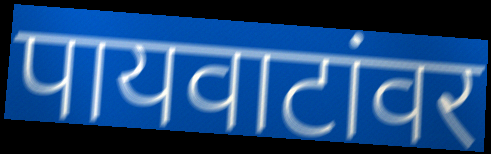
पायवाटांवर